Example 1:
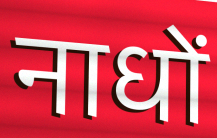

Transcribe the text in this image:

नाधों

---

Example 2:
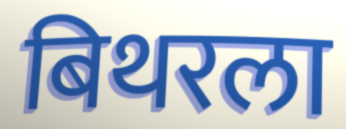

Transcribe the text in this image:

बिथरला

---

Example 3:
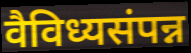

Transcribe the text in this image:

वैविध्यसंपन्न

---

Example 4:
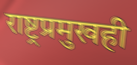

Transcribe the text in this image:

राष्ट्रप्रमुखही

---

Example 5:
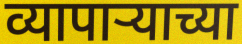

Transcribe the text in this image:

व्यापाऱ्याच्या